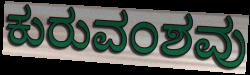
ಕುರುವಂಶವು